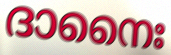
ദാനൈഃ